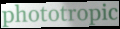
phototropic